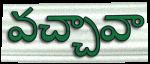
వచ్చావా